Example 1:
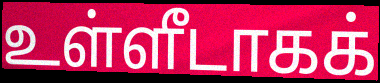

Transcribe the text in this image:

உள்ளீடாகக்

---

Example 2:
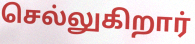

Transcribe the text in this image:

செல்லுகிறார்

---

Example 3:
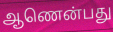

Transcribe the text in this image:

ஆணென்பது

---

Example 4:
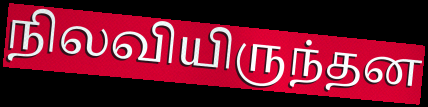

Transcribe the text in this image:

நிலவியிருந்தன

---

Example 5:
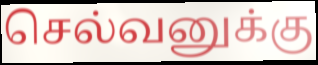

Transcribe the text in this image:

செல்வனுக்கு